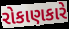
રોકાણકારે